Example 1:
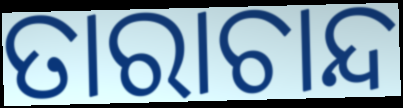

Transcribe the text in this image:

ତାରାଚାନ୍ଦ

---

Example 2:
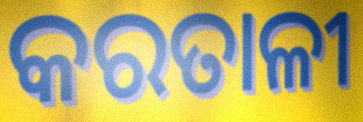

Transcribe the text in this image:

କରତାଳୀ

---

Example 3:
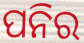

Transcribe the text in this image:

ପନିର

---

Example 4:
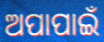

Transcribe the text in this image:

ଅପାପାଇଁ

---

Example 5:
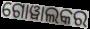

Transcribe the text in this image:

ଗୋୱାଲକର